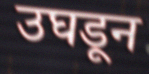
उघडून